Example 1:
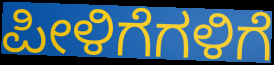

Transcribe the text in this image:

ಪೀಳಿಗೆಗಳಿಗೆ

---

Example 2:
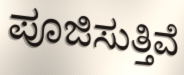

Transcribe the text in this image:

ಪೂಜಿಸುತ್ತಿವೆ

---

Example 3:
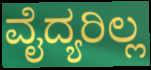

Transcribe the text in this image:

ವೈದ್ಯರಿಲ್ಲ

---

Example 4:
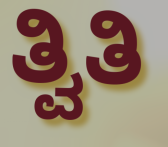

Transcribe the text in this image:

ತ್ವಿತಿ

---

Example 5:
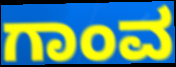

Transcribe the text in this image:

ಗಾಂವ